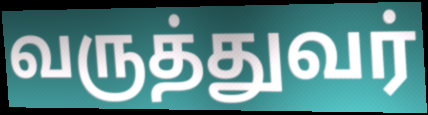
வருத்துவர்